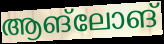
ആങ്‌ലോങ്